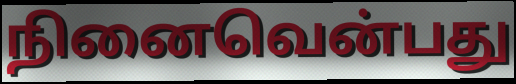
நினைவென்பது